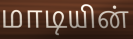
மாடியின்